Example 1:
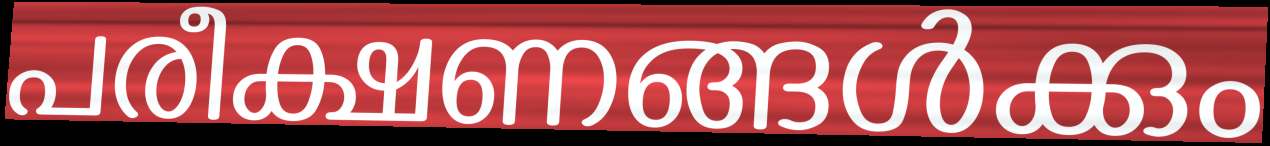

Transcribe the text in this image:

പരീക്ഷണങ്ങൾക്കും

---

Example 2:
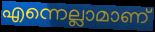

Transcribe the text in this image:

എന്നെല്ലാമാണ്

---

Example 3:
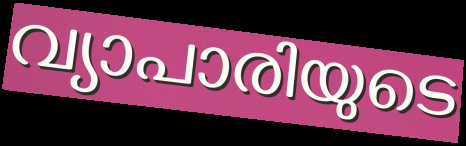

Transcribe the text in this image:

വ്യാപാരിയുടെ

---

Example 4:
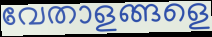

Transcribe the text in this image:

വേതാളങ്ങളെ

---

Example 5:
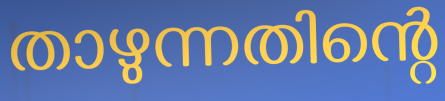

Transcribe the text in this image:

താഴുന്നതിന്റെ